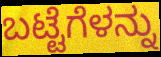
ಬಟ್ಟೆಗೆಳನ್ನು